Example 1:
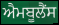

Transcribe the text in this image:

ਐਮਬੂਲੈਂਸ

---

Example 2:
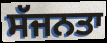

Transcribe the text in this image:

ਸੱਜਨਤਾ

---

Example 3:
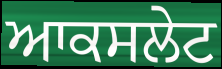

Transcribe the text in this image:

ਆਕਸਲੇਟ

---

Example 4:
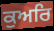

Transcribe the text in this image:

ਕੁਅਰਿ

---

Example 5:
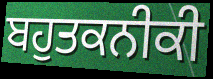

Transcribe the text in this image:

ਬਹੁਤਕਨੀਕੀ